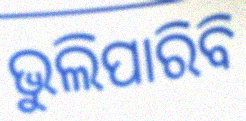
ଭୁଲିପାରିବି